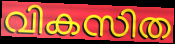
വികസിത